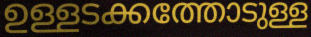
ഉള്ളടക്കത്തോടുള്ള